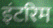
इंटरिम